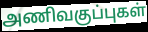
அணிவகுப்புகள்